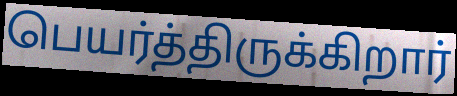
பெயர்த்திருக்கிறார்